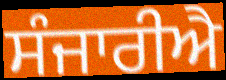
ਸੰਜਾਰੀਐ